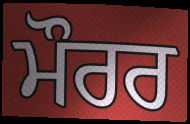
ਮੌਰਰ